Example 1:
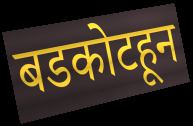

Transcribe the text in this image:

बडकोटहून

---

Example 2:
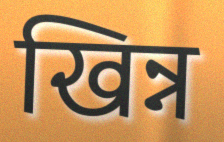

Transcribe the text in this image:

खिन्न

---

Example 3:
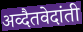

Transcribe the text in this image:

अव्दैतवेदांती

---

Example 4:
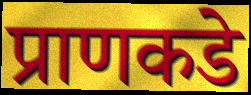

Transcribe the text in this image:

प्राणकडे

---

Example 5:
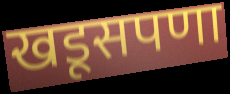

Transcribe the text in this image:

खडूसपणा